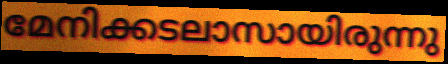
മേനിക്കടലാസായിരുന്നു